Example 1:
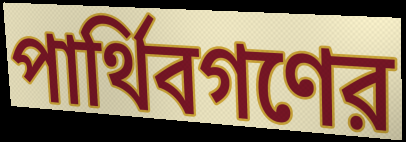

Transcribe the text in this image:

পার্থিবগণের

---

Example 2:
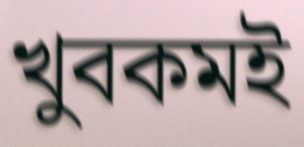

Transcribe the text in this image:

খুবকমই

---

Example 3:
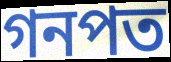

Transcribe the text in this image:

গনপত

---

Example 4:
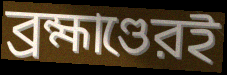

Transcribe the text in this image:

ব্রহ্মাণ্ডেরই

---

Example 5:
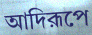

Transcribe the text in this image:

আদিরূপে